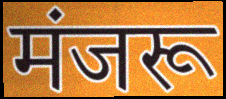
मंजरू